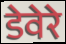
डेवेरे